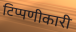
टिप्पणीकारी